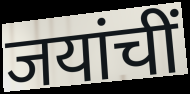
जयांचीं